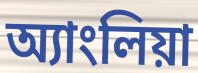
অ্যাংলিয়া